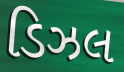
ડિઝલ